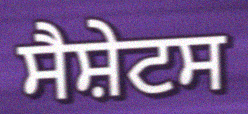
ਸੈਸ਼ੇਟਸ